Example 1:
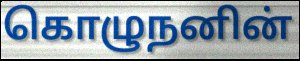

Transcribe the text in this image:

கொழுநனின்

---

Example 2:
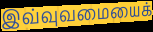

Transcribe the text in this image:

இவ்வுவமையைக்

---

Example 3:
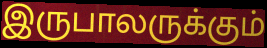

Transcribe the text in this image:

இருபாலருக்கும்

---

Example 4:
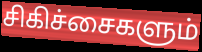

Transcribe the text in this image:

சிகிச்சைகளும்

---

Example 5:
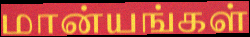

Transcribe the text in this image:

மான்யங்கள்